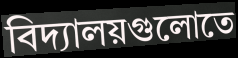
বিদ্যালয়গুলোতে